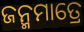
ଜନ୍ମମାତ୍ରେ